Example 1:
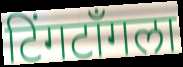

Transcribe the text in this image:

टिंगटॉंगला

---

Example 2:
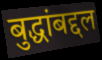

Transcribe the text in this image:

बुद्धांबद्दल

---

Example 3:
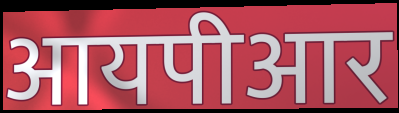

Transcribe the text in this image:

आयपीआर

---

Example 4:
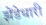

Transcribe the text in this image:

झेंडेधारी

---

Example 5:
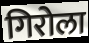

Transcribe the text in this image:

गिरोला